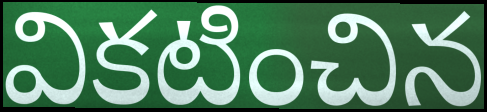
వికటించిన